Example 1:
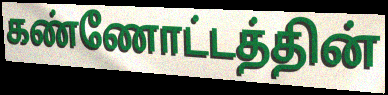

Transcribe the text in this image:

கண்ணோட்டத்தின்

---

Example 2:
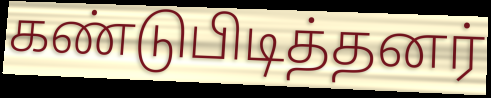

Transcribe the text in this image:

கண்டுபிடித்தனர்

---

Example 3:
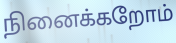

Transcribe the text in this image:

நினைக்கறோம்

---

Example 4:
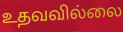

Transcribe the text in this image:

உதவவில்லை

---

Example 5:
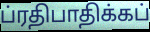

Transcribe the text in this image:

ப்ரதிபாதிக்கப்